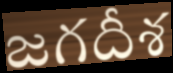
జగదీశ